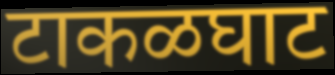
टाकळघाट